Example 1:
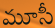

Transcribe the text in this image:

మూసీ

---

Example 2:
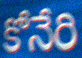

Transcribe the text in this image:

కోనేరి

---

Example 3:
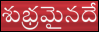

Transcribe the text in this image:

శుభ్రమైనదే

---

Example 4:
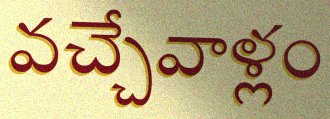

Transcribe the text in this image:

వచ్చేవాళ్లం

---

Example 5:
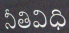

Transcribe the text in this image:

నీతివిధి